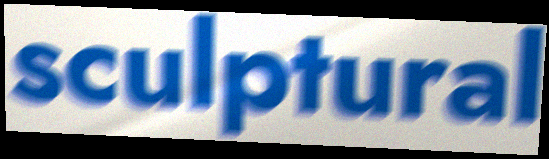
sculptural